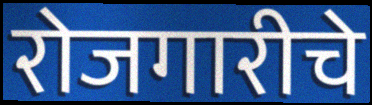
रोजगारीचे